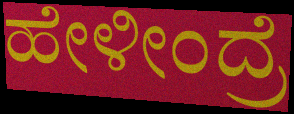
ಹೇಳೀಂದ್ರೆ